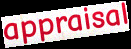
appraisal